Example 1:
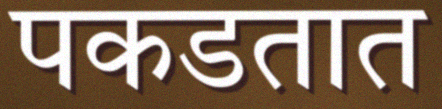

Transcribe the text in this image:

पकडतात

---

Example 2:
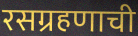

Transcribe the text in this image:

रसग्रहणाची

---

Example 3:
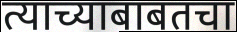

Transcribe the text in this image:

त्याच्याबाबतचा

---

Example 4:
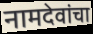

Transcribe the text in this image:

नामदेवांचा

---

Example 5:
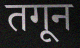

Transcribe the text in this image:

तगून